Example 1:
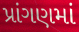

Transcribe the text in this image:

પ્રાંગણમાં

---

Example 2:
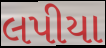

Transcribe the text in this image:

લપીયા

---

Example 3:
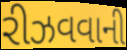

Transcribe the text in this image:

રીઝવવાની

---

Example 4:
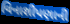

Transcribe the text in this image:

વિનાશીપણાની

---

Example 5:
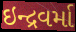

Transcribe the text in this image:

ઇન્દ્રવર્મા